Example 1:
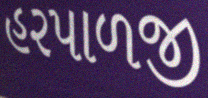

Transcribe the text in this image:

હરપાળજી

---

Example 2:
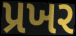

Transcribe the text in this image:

પ્રખર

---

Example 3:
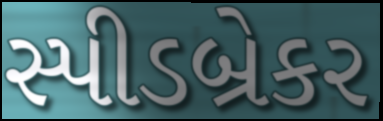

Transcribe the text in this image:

સ્પીડબ્રેકર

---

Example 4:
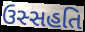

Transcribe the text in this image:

ઉસ્સહતિ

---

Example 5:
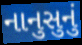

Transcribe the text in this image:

નાનુસુનું